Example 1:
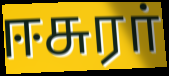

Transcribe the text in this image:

ஈசுரர்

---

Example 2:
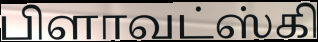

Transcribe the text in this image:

பிளாவட்ஸ்கி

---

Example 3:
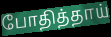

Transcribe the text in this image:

போதித்தாய்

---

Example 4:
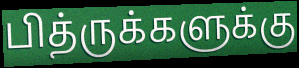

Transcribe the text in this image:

பித்ருக்களுக்கு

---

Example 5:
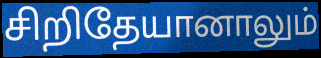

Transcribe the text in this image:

சிறிதேயானாலும்